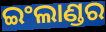
ଇଂଲାଣ୍ଡର